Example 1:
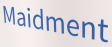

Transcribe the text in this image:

Maidment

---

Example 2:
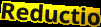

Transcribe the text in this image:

Reductio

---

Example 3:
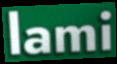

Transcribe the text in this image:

lami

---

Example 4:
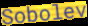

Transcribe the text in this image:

Sobolev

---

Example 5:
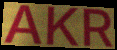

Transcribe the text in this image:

AKR